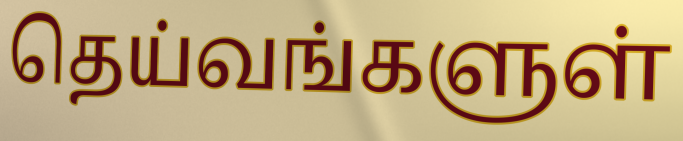
தெய்வங்களுள்